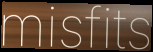
misfits